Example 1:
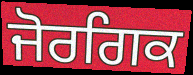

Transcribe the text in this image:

ਜੋਰਗਿਕ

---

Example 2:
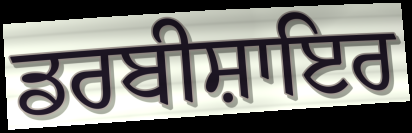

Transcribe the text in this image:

ਡਰਬੀਸ਼ਾਇਰ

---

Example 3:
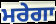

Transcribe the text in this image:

ਮਰੇਗਾ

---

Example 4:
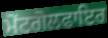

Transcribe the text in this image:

ਮੋਂਟਗੋਲਫਾਇਰ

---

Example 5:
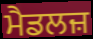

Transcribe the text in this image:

ਮੈਡਲਜ਼